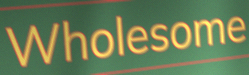
Wholesome